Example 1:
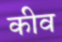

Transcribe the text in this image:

कीव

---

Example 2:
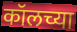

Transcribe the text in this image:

कॉलच्या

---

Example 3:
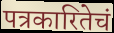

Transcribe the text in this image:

पत्रकारितेचं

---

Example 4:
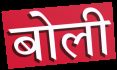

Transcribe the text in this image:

बोली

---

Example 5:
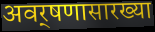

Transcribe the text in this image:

अवर्षणासारख्या